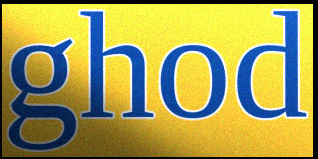
ghod